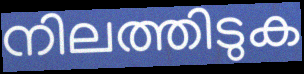
നിലത്തിടുക